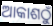
ଆକାଶଠୁଁ